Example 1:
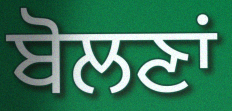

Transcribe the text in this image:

ਬੋਲਣਾਂ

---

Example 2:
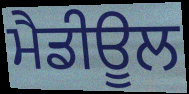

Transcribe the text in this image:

ਮੈਡੀਊਲ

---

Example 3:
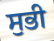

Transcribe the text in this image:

ਸੁਭੀ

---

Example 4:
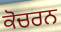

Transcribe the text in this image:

ਕੋਚਰਨ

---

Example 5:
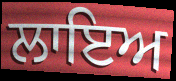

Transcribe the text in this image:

ਲਾਇਅ